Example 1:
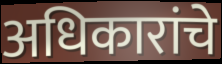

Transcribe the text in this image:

अधिकारांचे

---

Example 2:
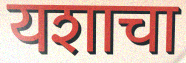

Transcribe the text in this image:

यशाचा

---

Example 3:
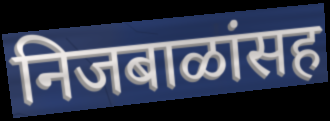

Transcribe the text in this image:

निजबाळांसह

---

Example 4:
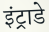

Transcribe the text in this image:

इंट्राडे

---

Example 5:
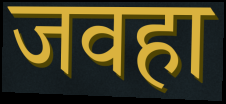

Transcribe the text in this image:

जवहा